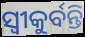
ସ୍ଵୀକୁର୍ବନ୍ତି